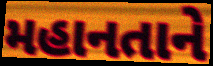
મહાનતાને